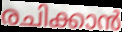
രചിക്കാൻ